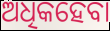
ଅଧିକହେବା